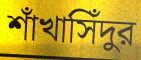
শাঁখাসিঁদুর